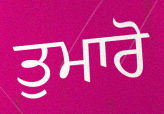
ਤੁਮਾਰੋ